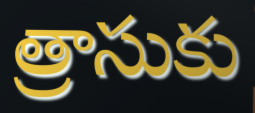
త్రాసుకు